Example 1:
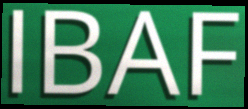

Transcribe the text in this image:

IBAF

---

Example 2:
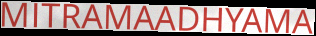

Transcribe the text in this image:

MITRAMAADHYAMA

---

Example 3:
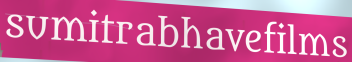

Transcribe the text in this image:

sumitrabhavefilms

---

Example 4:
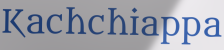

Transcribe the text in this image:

Kachchiappa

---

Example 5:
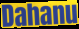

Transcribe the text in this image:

Dahanu